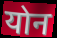
योन